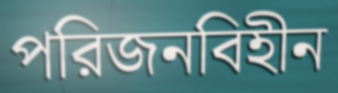
পরিজনবিহীন